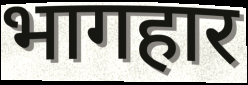
भागहार